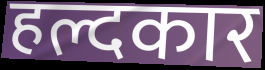
हल्दकार